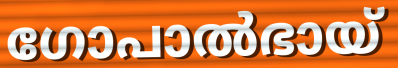
ഗോപാൽഭായ്